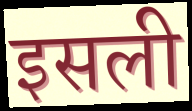
इसली